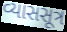
વ્યાસસૂત્ર